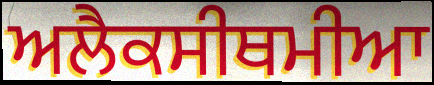
ਅਲੈਕਸੀਥਮੀਆ